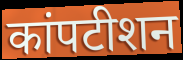
कांपटीशन